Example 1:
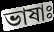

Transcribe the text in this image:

ভাষাঃ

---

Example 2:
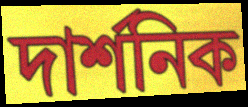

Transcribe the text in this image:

দাৰ্শনিক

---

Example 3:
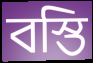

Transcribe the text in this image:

বস্তি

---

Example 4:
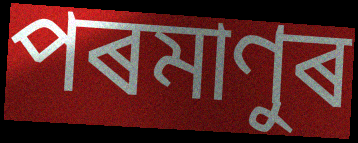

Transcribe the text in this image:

পৰমাণুৰ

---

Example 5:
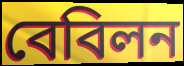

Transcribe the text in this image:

বেবিলন